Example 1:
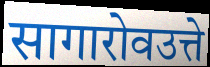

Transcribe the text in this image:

सागारोवउत्ते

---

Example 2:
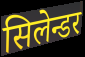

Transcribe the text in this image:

सिलेन्डर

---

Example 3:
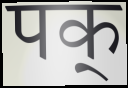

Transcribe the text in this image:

पक्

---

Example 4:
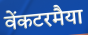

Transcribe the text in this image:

वेंकटरमैया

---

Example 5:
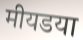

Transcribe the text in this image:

मीयडया